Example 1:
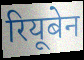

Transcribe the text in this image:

रियूबेन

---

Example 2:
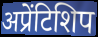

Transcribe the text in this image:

अप्रेंटिशिप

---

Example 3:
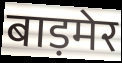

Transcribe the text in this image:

बाड़मेर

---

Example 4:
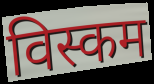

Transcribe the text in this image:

विस्कम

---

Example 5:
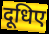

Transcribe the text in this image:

दूधिए